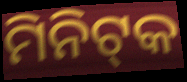
ମିନିଟ୍‍କ